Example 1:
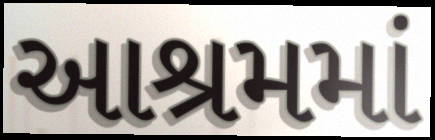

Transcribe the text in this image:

આશ્રમમાં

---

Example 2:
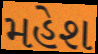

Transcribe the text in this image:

મહેશ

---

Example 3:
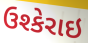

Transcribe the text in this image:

ઉશ્કેરાઇ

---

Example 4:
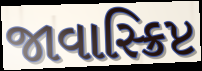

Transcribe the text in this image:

જાવાસ્ક્રિપ્ટ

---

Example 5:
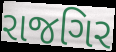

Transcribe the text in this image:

રાજગિર